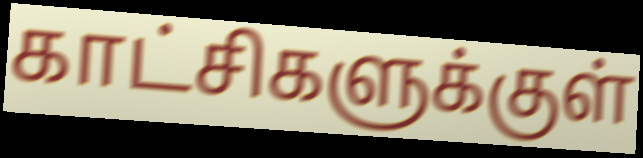
காட்சிகளுக்குள்